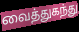
வைத்துகந்து